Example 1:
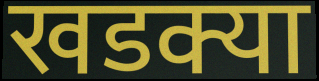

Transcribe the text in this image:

खडक्या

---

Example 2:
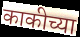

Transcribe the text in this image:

काकीच्या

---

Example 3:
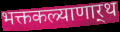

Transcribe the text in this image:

भक्तकल्याणार्थ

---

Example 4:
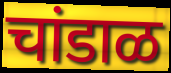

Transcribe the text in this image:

चांडाळ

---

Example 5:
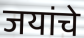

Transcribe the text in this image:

जयांचे